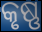
କୃଷ୍ଣ